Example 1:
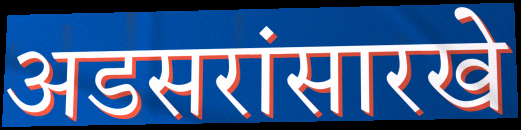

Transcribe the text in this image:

अडसरांसारखे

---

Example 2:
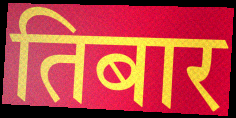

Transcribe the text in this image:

तिबार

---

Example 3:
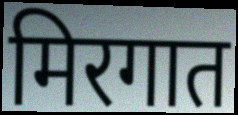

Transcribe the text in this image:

मिरगात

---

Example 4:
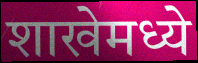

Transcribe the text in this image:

शाखेमध्ये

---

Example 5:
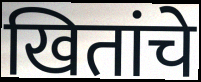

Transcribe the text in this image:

खितांचे